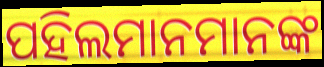
ପହିଲମାନମାନଙ୍କ